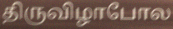
திருவிழாபோல